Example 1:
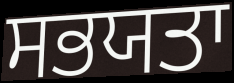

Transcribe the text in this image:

ਸਭਯਤਾ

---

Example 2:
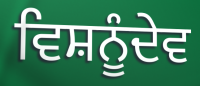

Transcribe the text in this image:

ਵਿਸ਼ਨੂੰਦੇਵ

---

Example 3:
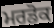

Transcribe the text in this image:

ਮਰਡੋਕ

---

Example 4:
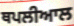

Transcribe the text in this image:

ਥਪਲੀਆਲ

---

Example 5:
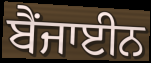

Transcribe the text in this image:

ਬੈਂਜਾਈਨ